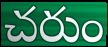
చరుం